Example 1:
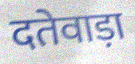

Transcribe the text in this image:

दतेवाड़ा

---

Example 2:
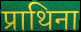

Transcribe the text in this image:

प्राथिना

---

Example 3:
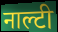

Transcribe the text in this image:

नाल्टी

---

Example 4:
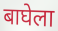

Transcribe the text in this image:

बाघेला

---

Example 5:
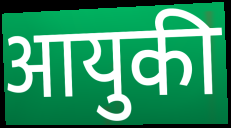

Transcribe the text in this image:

आयुकी